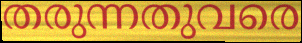
തരുന്നതുവരെ